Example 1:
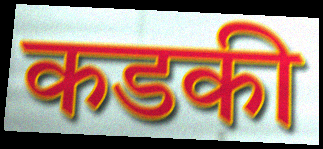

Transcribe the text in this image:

कडकी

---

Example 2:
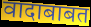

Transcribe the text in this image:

वादाबाबत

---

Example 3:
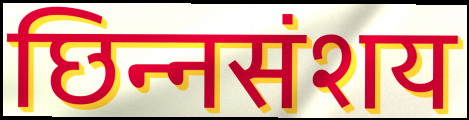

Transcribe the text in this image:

छिन्नसंशय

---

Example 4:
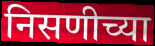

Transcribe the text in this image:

निसणीच्या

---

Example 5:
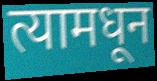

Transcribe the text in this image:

त्यामधून